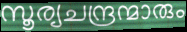
സൂര്യചന്ദ്രന്മാരും